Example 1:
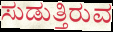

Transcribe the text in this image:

ಸುಡುತ್ತಿರುವ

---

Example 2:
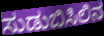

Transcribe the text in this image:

ಸುಡುಬಿಸಿಲಿನ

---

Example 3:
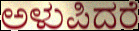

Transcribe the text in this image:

ಅಳುಪಿದರೆ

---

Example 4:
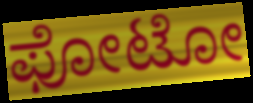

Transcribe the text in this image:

ಫೋಟೋ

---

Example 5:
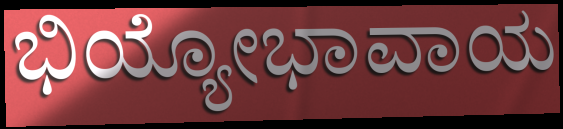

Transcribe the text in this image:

ಭಿಯ್ಯೋಭಾವಾಯ